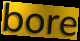
bore